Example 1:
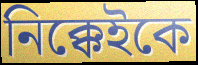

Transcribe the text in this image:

নিক্কেইকে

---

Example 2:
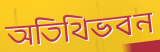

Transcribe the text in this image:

অতিথিভবন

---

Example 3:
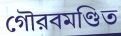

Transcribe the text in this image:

গৌরবমণ্ডিত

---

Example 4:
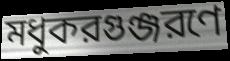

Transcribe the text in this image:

মধুকরগুঞ্জরণে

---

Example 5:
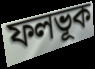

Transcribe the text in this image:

ফলভূক